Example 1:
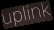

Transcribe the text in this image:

uplink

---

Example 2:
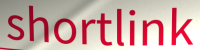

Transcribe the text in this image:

shortlink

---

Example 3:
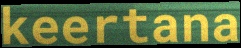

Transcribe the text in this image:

keertana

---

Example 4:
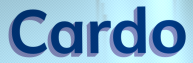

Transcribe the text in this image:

Cardo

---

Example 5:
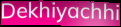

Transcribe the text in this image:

Dekhiyachhi